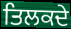
ਤਿਲਕਦੇ